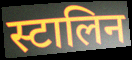
स्टालिन